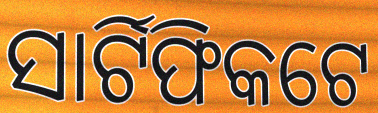
ସାର୍ଟିଫିକଟେ